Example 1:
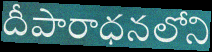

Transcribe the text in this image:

దీపారాధనలోని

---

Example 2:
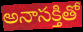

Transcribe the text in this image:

అనాసక్తితో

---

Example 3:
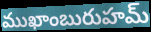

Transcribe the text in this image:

ముఖాంబురుహమ్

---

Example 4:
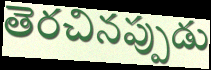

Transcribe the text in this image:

తెరచినప్పుడు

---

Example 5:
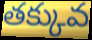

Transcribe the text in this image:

తక్కువ